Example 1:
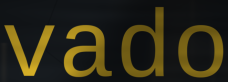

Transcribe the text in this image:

vado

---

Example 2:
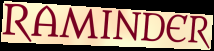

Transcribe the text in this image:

RAMINDER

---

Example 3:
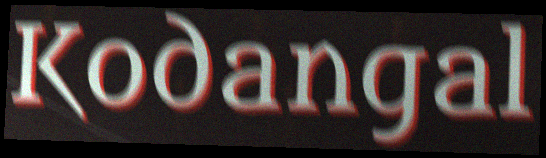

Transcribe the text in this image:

Kodangal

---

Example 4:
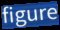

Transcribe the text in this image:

figure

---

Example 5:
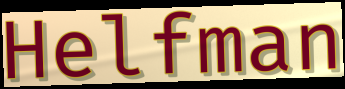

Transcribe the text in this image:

Helfman